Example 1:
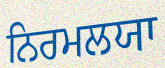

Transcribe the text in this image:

ਨਿਰਮਲਯਾ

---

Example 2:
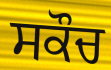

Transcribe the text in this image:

ਸਕੌਚ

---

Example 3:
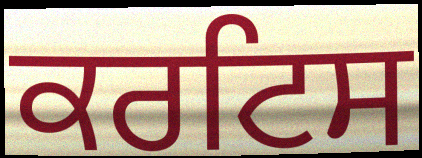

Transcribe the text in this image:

ਕਰਟਿਸ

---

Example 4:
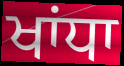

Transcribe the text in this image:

ਖਾਂਧਾ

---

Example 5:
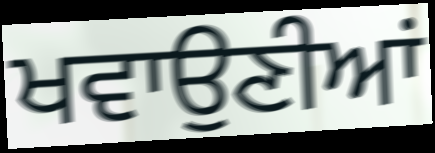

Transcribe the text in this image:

ਖਵਾਉਣੀਆਂ